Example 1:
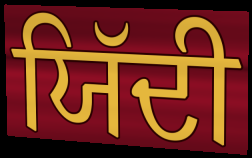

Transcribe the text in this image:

ਯਿੱਦੀ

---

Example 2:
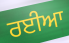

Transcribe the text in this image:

ਰਈਆ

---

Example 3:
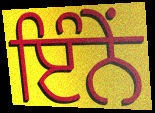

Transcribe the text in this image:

ਇੰਨੇਂ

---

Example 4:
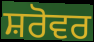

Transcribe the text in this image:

ਸ਼ਰੋਵਰ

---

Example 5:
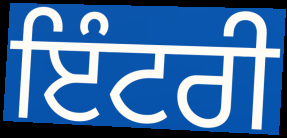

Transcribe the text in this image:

ਇੰਟਰੀ